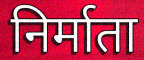
निर्माता